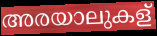
അരയാലുകള്